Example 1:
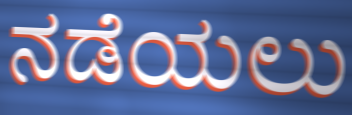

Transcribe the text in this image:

ನಡೆಯಲು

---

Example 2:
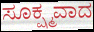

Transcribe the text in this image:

ಸೂಕ್ಷ್ಮವಾದ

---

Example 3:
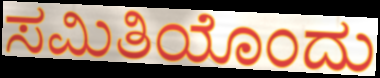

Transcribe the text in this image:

ಸಮಿತಿಯೊಂದು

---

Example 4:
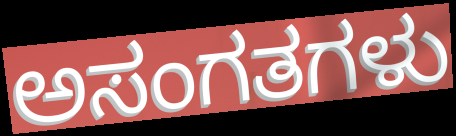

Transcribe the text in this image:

ಅಸಂಗತಗಳು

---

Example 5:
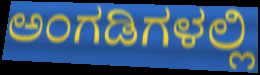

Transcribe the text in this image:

ಅಂಗಡಿಗಳಲ್ಲಿ